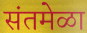
संतमेळा